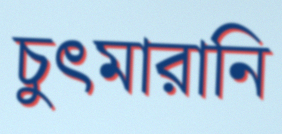
চুৎমারানি